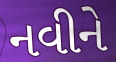
નવીને